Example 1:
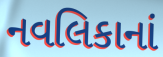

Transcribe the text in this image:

નવલિકાનાં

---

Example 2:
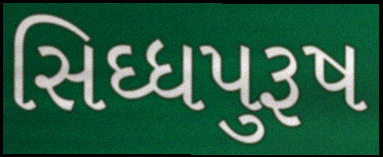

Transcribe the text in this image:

સિઘ્ધપુરૂષ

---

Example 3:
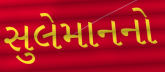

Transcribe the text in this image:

સુલેમાનનો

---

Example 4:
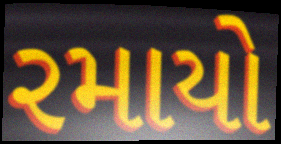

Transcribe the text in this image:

રમાયો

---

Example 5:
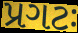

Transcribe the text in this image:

પ્રગટઃ